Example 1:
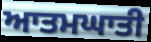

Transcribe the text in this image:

ਆਤਮਘਾਤੀ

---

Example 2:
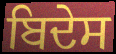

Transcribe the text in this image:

ਬਿਦੇਸ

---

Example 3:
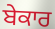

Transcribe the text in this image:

ਬੇਕਾਰ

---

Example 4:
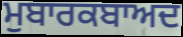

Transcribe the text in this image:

ਮੁਬਾਰਕਬਾਅਦ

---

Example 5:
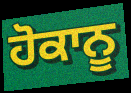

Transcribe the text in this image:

ਹੋਕਾਨੂ